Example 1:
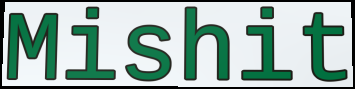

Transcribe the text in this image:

Mishit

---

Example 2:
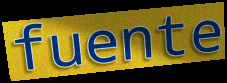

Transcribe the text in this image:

fuente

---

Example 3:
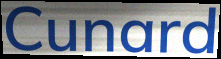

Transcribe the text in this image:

Cunard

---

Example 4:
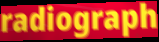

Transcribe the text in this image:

radiograph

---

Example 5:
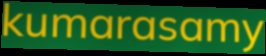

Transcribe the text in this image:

kumarasamy